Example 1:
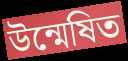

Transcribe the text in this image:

উন্মেষিত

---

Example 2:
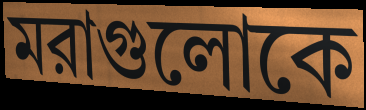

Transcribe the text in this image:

মরাগুলোকে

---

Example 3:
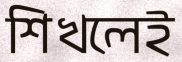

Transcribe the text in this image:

শিখলেই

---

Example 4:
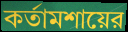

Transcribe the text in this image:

কর্তামশায়ের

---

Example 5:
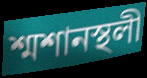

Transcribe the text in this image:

শ্মশানস্থলী